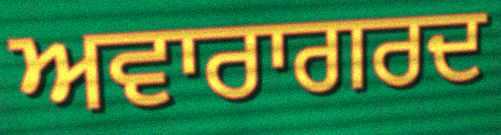
ਅਵਾਰਾਗਰਦ